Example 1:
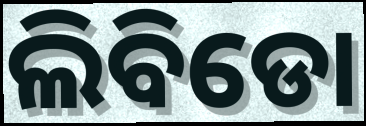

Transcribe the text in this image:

ଲିବିଡୋ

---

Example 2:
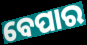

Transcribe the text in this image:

ବେପାର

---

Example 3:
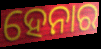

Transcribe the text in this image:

ହେନାର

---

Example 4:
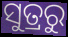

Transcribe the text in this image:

ସୁତ୍ରରୁ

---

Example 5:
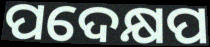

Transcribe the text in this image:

ପଦେକ୍ଷପ